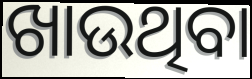
ଖାଉଥିବା